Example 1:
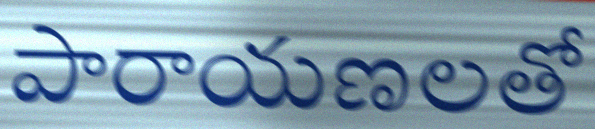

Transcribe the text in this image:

పారాయణలతో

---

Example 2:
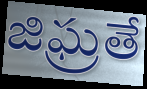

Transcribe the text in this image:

జిఘ్రతే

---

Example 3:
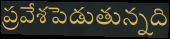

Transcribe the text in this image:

ప్రవేశపెడుతున్నది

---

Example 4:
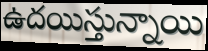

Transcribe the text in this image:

ఉదయిస్తున్నాయి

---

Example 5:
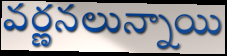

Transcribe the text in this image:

వర్ణనలున్నాయి